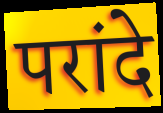
परांदे